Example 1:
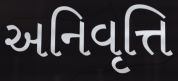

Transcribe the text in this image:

અનિવૃત્તિ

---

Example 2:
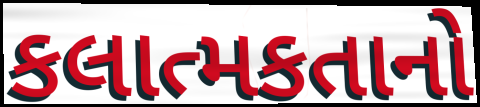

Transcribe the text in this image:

કલાત્મકતાનો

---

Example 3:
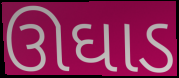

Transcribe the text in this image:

ઊઘાડ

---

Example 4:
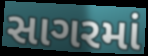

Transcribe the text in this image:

સાગરમાં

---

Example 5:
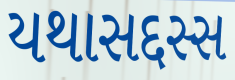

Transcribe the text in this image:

યથાસદ્દસ્સ